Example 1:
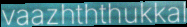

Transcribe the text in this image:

vaazhththukkal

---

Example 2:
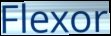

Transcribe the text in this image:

Flexor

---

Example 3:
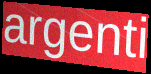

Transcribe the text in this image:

argenti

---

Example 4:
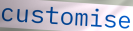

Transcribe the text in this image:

customise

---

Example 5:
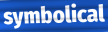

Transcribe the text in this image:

symbolical